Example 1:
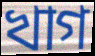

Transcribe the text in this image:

খাগ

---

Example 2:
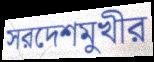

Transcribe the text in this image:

সরদেশমুখীর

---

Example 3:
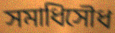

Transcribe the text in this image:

সমাধিসৌধ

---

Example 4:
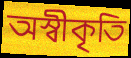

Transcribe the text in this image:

অস্বীকৃতি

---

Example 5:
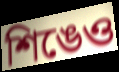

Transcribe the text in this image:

শিঙেও